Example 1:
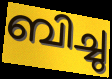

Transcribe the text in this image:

ബിച്ചു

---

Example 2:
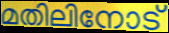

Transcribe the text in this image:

മതിലിനോട്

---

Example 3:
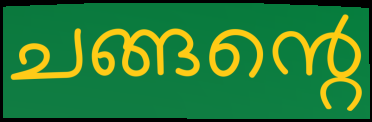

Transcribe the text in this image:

ചങ്ങന്റെ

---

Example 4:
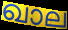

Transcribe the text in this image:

ഖാല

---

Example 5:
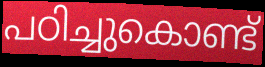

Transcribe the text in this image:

പഠിച്ചുകൊണ്ട്